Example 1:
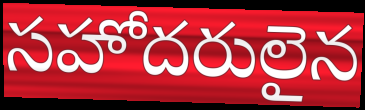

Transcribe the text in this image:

సహోదరులైన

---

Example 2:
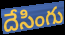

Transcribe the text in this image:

దేసింగు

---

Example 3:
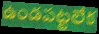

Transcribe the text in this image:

ఉండపట్టలేక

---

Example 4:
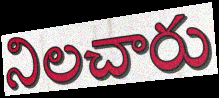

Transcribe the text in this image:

నిలచారు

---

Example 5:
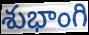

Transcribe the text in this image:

శుభాంగి